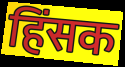
हिंसक